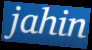
jahin